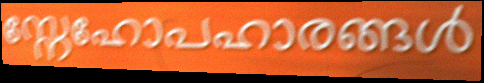
സ്നേഹോപഹാരങ്ങൾ